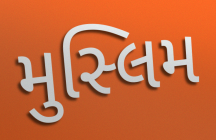
મુસ્લિમ